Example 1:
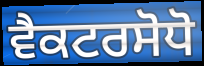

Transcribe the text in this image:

ਵੈਕਟਰਸੋਧੋ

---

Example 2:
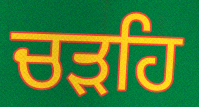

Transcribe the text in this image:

ਚੜਹਿ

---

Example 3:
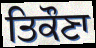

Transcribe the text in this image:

ਤਿਕੌਣਾ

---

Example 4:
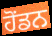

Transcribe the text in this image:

ਹੋਂਡਨ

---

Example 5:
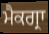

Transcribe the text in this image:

ਮੈਕਗ੍ਰਾ